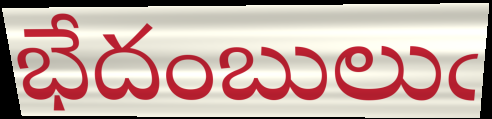
భేదంబులుఁ